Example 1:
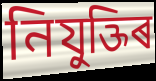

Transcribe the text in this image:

নিযুক্তিৰ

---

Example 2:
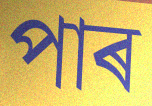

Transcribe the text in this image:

পাৰ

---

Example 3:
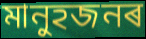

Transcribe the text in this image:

মানুহজনৰ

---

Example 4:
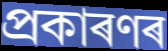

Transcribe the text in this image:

প্ৰকাৰণৰ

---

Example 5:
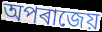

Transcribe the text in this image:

অপৰাজেয়